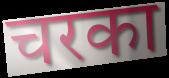
चरका